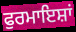
ਫੁਰਮਾਇਸ਼ਾਂ